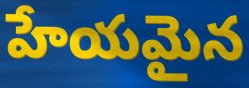
హేయమైన